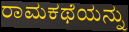
ರಾಮಕಥೆಯನ್ನು